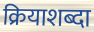
क्रियाशब्दा